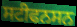
ਸਟੀਫਨਸਨ